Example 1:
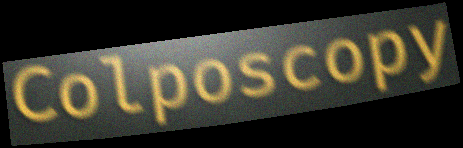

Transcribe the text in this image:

Colposcopy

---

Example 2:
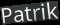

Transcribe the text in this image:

Patrik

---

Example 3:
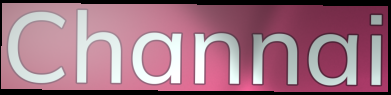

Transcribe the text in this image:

Channai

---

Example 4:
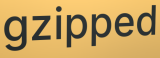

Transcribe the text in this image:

gzipped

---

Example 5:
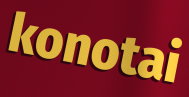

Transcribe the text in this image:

konotai